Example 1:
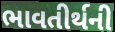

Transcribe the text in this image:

ભાવતીર્થની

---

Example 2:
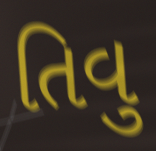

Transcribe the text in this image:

તિવુ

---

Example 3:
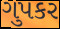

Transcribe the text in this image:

ગુપકર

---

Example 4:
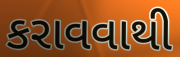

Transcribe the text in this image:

કરાવવાથી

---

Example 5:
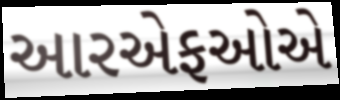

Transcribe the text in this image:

આરએફઓએ